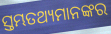
ସ୍ତମ୍ଭତଥ୍ୟମାନଙ୍କର